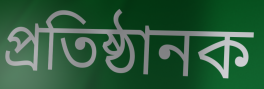
প্ৰতিষ্ঠানক